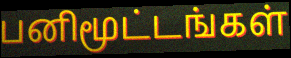
பனிமூட்டங்கள்